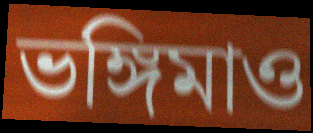
ভঙ্গিমাও